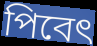
পিবেৎ